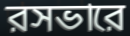
রসভারে